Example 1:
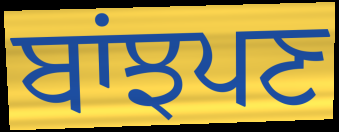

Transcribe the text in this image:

ਬਾਂਝਪਣ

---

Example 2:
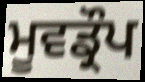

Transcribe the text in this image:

ਮੂਵਡ੍ਰੌਪ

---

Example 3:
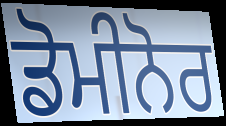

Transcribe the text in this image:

ਡੋਮੀਨੋਰ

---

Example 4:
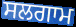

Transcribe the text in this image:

ਸਲਗਾਮ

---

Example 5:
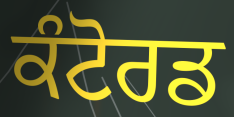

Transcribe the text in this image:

ਕੰਟੋਰਡ